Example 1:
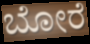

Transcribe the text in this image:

ಬೋರೆ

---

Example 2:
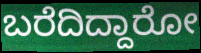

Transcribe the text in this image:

ಬರೆದಿದ್ದಾರೋ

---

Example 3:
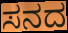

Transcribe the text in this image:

ಸನದ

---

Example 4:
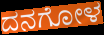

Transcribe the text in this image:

ದನಗೋಳ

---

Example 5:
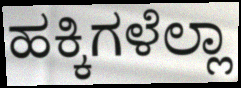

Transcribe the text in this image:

ಹಕ್ಕಿಗಳೆಲ್ಲಾ